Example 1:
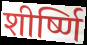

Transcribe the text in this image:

शीर्ष्णि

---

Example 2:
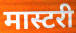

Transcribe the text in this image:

मास्टरी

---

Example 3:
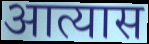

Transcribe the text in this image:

आत्यास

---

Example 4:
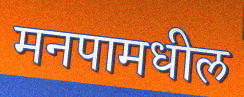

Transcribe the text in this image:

मनपामधील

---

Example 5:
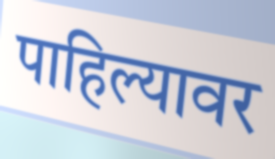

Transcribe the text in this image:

पाहिल्‍यावर